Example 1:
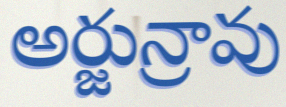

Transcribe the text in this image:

అర్జున్రావు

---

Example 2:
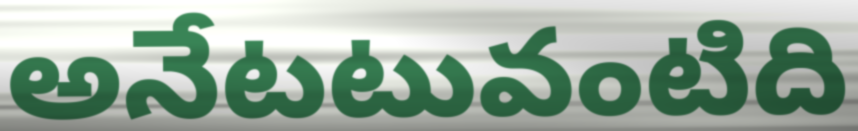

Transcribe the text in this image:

అనేటటువంటిది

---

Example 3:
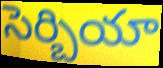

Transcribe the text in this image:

సెర్బియా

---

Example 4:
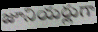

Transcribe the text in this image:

జూనియర్లుగా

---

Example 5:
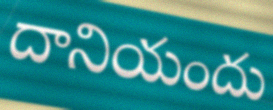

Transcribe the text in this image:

దానియందు